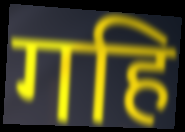
गहि